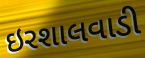
ઇરશાલવાડી